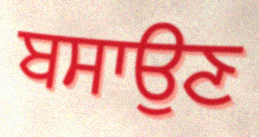
ਬਸਾਉਣ